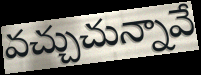
వచ్చుచున్నావే